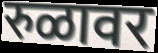
रुळावर